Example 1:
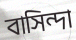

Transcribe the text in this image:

বাসিন্দা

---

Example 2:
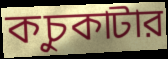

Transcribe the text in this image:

কচুকাটার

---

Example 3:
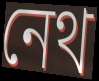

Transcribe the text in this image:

নেথ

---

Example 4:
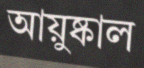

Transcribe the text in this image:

আয়ুষ্কাল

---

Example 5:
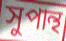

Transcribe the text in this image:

সুপান্থ